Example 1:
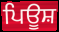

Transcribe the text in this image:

ਪਿਊਸ਼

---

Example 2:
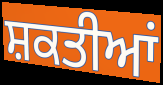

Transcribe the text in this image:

ਸ਼ਕਤੀਆਂ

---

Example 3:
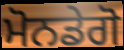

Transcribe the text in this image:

ਮੋਨਡੇਗੋ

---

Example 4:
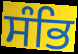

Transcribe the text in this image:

ਸੰਭਿ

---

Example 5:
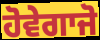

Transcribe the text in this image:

ਹੋਵੇਗਾਜੋ